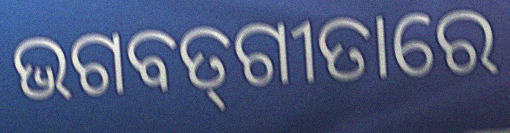
ଭଗବତ୍‌ଗୀତାରେ